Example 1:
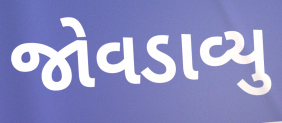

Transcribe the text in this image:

જોવડાવ્યુ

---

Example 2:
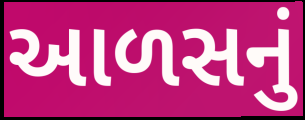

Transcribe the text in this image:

આળસનું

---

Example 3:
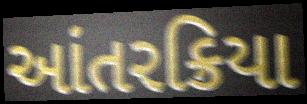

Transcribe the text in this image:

આંતરક્રિયા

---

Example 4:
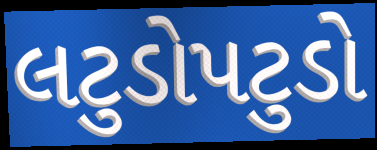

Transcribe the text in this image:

લટુડોપટુડો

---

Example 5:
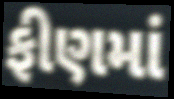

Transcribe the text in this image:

ફીણમાં